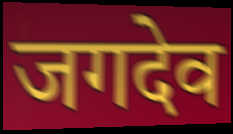
जगदेव